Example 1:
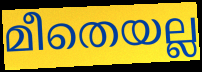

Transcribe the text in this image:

മീതെയല്ല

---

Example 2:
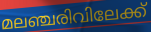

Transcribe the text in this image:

മലഞ്ചരിവിലേക്ക്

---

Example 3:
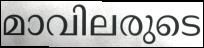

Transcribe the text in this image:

മാവിലരുടെ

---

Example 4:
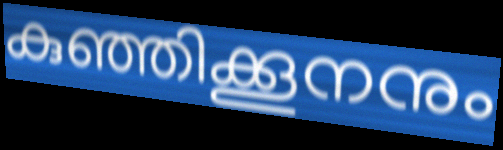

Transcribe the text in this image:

കുഞ്ഞിക്കൂനനും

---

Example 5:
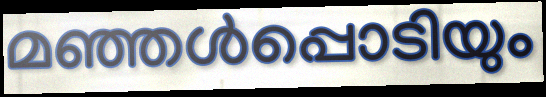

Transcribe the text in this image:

മഞ്ഞൾപ്പൊടിയും